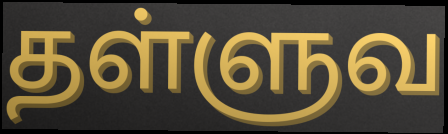
தள்ளுவ